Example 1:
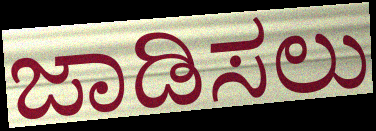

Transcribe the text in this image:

ಜಾಡಿಸಲು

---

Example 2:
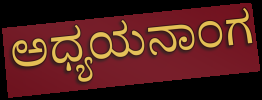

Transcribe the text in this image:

ಅಧ್ಯಯನಾಂಗ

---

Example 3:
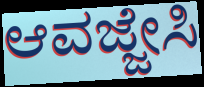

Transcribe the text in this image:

ಆವಜ್ಜೇಸಿ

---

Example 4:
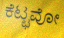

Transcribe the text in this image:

ಕೆಟ್ಟವೋ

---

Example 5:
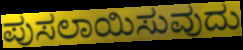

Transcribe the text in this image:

ಪುಸಲಾಯಿಸುವುದು